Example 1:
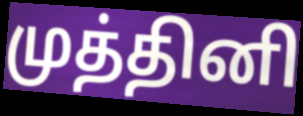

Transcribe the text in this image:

முத்தினி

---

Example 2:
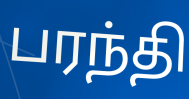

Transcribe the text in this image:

பரந்தி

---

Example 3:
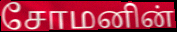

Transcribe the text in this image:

சோமனின்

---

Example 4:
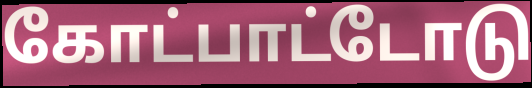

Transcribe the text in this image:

கோட்பாட்டோடு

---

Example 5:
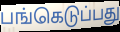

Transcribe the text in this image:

பங்கெடுப்பது